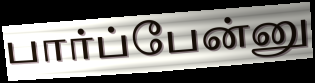
பார்ப்பேன்னு